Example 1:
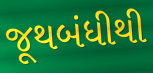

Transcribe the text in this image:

જૂથબંધીથી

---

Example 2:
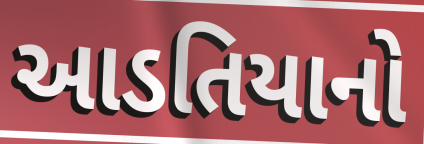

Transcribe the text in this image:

આડતિયાનો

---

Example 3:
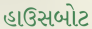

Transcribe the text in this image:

હાઉસબોટ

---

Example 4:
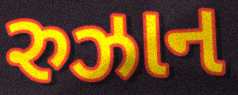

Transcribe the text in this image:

રુઝાન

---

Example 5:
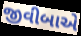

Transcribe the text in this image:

જીવીબાએ